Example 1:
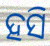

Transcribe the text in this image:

ହସି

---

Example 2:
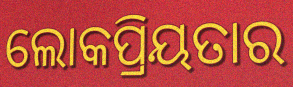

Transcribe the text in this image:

ଲୋକପ୍ରିୟତାର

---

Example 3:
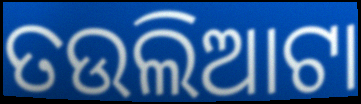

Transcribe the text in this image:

ତଉଲିଆଟା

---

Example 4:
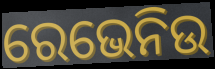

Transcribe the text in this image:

ରେଭେନିଉ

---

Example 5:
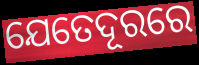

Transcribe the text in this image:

ଯେତେଦୂରରେ